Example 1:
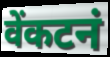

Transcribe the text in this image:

वेंकटनं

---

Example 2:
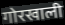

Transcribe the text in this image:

गोरखाली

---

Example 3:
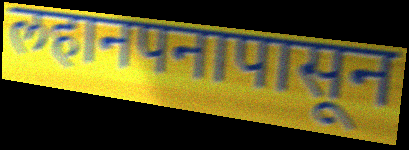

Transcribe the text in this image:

लहानपनापासून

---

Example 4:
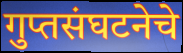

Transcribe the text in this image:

गुप्तसंघटनेचे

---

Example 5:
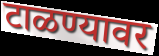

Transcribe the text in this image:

टाळण्यावर